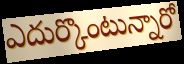
ఎదుర్కొంటున్నారో